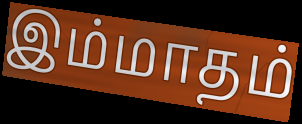
இம்மாதம்